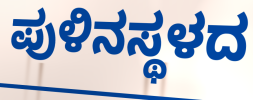
ಪುಳಿನಸ್ಥಳದ